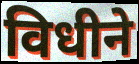
विधीने